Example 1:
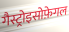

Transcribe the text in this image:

गैस्ट्रोइसोफ़ेगल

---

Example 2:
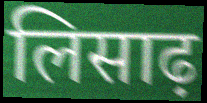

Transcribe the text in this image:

लिसाढ़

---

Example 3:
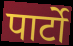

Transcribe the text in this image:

पार्टो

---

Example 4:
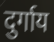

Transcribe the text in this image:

दुर्गाय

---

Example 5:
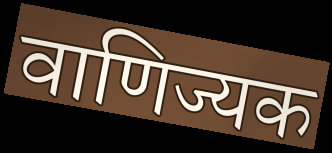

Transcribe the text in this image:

वाणिज्यक